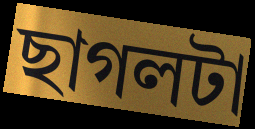
ছাগলটা